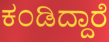
ಕಂಡಿದ್ದಾರೆ